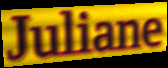
Juliane